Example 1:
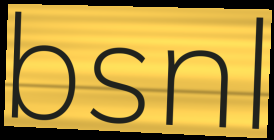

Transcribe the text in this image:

bsnl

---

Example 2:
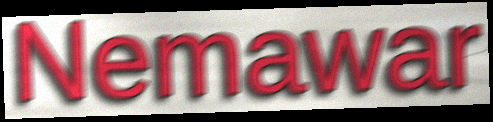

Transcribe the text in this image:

Nemawar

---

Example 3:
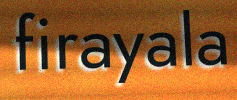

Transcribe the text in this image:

firayala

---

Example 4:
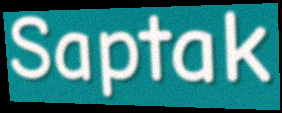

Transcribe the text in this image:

Saptak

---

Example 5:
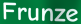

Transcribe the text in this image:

Frunze